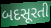
બદસૂરતી